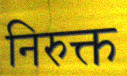
निरुक्त